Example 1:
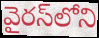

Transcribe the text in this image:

వైరస్‌లోని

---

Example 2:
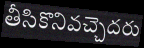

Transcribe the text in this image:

తీసికొనివచ్చెదరు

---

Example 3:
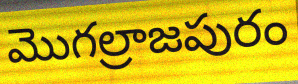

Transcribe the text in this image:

మొగల్రాజపురం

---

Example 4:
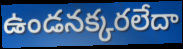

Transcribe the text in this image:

ఉండనక్కరలేదా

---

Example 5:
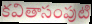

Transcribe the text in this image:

కవితాసంపుటి